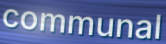
communal